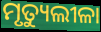
ମୃତ୍ୟୁଲୀଳା